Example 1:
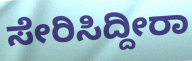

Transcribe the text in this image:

ಸೇರಿಸಿದ್ದೀರಾ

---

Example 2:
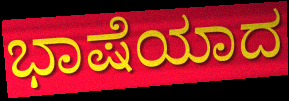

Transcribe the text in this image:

ಭಾಷೆಯಾದ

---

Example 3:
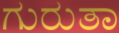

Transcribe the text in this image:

ಗುರುತಾ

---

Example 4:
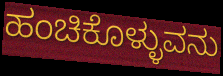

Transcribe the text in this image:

ಹಂಚಿಕೊಳ್ಳುವನು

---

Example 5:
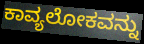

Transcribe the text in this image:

ಕಾವ್ಯಲೋಕವನ್ನು